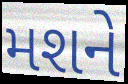
મશને